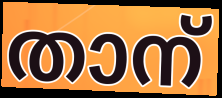
താന്